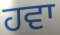
ਹਵਾ